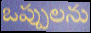
ఒప్పులను